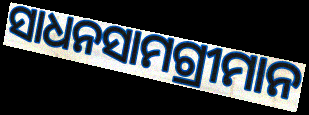
ସାଧନସାମଗ୍ରୀମାନ